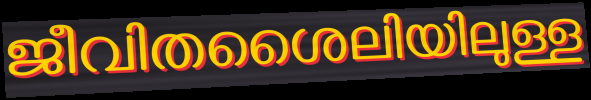
ജീവിതശൈലിയിലുള്ള